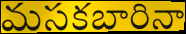
మసకబారినా